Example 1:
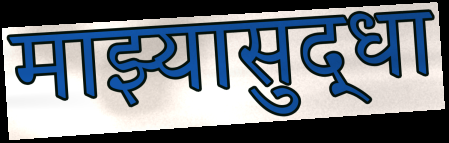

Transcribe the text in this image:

माझ्यासुद्धा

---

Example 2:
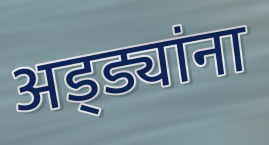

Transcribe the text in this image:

अड्ड्यांना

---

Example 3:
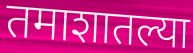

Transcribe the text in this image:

तमाशातल्या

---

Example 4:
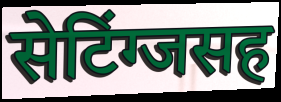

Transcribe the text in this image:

सेटिंग्जसह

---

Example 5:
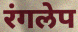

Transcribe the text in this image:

रंगलेप